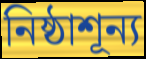
নিষ্ঠাশূন্য